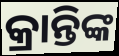
କ୍ରାନ୍ତିଙ୍କ